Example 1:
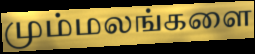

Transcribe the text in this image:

மும்மலங்களை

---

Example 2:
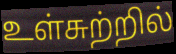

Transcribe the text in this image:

உள்சுற்றில்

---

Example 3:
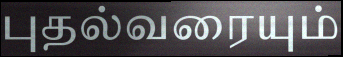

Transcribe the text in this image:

புதல்வரையும்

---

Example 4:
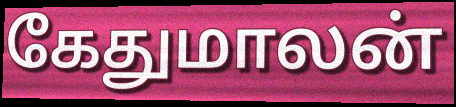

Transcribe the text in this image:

கேதுமாலன்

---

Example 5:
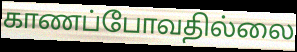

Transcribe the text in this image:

காணப்போவதில்லை